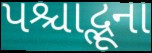
પશ્ચાદ્ભૂના